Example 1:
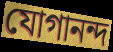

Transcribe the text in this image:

যোগানন্দ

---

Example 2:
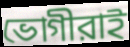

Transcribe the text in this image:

ভোগীরাই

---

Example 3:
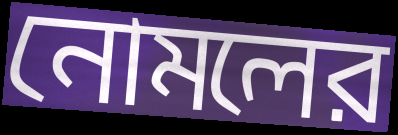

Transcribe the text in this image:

নোমলের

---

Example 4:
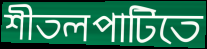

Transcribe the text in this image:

শীতলপাটিতে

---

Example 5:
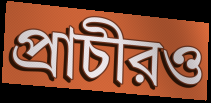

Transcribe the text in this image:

প্রাচীরও